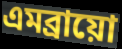
এমব্রায়ো